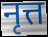
नृत्त